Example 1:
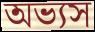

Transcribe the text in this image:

অভ্যস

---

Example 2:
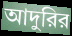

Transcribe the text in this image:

আদুরির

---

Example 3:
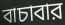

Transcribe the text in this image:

বাচাবার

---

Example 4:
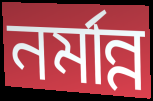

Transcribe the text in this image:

নর্মান্ন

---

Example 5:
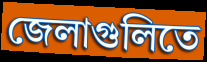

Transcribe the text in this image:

জেলাগুলিতে